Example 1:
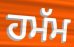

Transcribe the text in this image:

ਹਮੱਮ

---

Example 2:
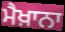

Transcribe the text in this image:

ਮੈਖ਼ਾਨਾ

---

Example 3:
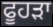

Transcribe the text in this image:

ਫੂਹੜਾ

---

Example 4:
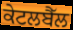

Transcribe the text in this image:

ਕੇਟਲਬੈੱਲ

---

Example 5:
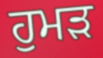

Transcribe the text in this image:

ਹੁਮੜ